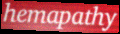
hemapathy